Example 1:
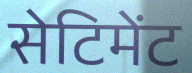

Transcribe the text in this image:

सेटिमेंट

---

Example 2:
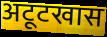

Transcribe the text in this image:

अटूटखास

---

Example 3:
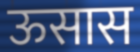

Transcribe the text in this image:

ऊसास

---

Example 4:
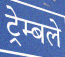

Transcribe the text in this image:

ट्रेम्बले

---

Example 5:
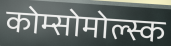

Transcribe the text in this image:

कोम्सोमोल्स्क